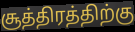
சூத்திரத்திற்கு